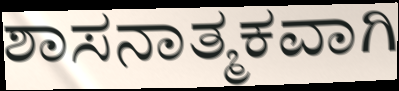
ಶಾಸನಾತ್ಮಕವಾಗಿ